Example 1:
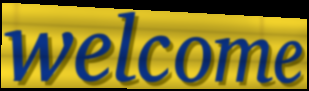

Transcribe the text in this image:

welcome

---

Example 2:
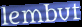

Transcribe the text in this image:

lembut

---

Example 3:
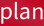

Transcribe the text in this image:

plan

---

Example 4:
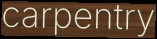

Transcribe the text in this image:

carpentry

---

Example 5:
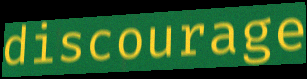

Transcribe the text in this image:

discourage